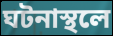
ঘটনাস্থলে